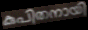
കുപിതനായി